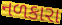
નળકારા